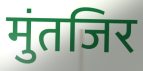
मुंतजिर